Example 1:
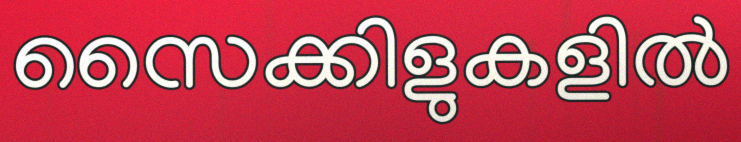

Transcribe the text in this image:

സൈക്കിളുകളിൽ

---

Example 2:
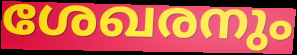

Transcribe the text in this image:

ശേഖരനും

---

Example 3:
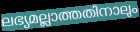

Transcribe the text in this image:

ലഭ്യമല്ലാത്തതിനാലും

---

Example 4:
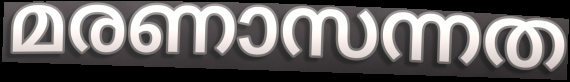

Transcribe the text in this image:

മരണാസന്നത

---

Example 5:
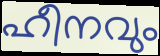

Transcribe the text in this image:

ഹീനവും